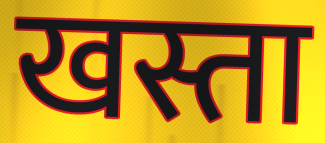
खस्ता